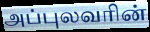
அப்புலவரின்